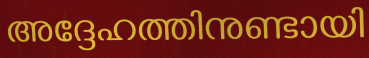
അദ്ദേഹത്തിനുണ്ടായി